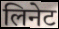
लिनेट